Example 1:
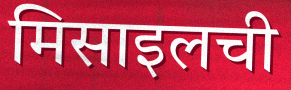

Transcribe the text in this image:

मिसाइलची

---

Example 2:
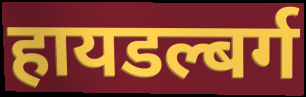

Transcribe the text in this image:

हायडल्बर्ग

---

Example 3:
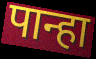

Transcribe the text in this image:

पान्हा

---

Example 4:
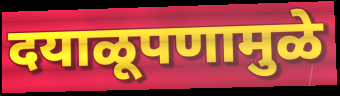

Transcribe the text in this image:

दयाळूपणामुळे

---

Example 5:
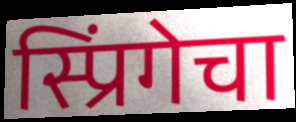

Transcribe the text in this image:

स्प्रिंगेचा